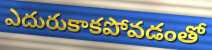
ఎదురుకాకపోవడంతో